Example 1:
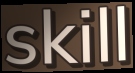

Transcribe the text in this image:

skill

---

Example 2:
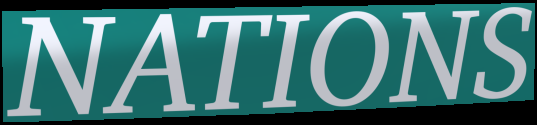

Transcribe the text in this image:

NATIONS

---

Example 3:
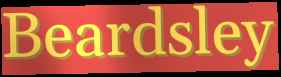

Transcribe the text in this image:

Beardsley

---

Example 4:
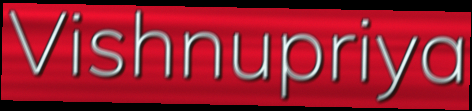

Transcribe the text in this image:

Vishnupriya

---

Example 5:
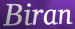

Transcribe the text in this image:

Biran